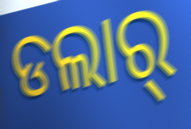
ଡଲାର୍